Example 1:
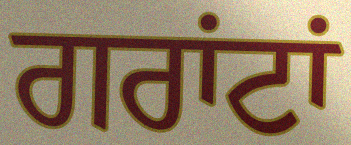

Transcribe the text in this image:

ਗਰਾਂਟਾਂ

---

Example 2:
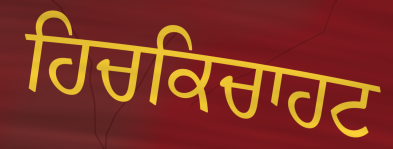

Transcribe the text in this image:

ਹਿਚਕਿਚਾਹਟ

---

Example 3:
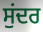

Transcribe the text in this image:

ਸੁਂਦਰ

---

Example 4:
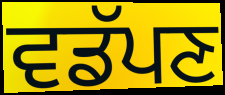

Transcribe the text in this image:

ਵਡੱਪਣ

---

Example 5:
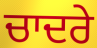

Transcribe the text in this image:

ਚਾਦਰੇ